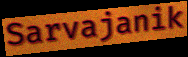
Sarvajanik